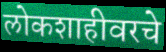
लोकशाहीवरचे